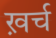
ख़र्च